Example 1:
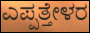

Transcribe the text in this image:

ಎಪ್ಪತ್ತೇಳರ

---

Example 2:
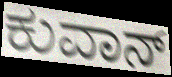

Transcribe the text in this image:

ಕುವಾನ್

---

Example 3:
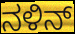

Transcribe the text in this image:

ನಳಿನ್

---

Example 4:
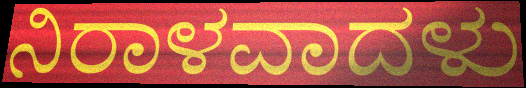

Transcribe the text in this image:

ನಿರಾಳವಾದಳು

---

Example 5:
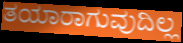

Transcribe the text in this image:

ತಯಾರಾಗುವುದಿಲ್ಲ